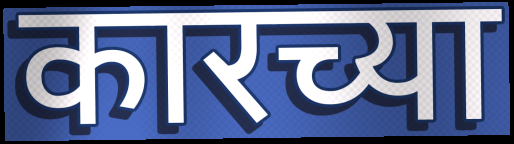
कारच्या